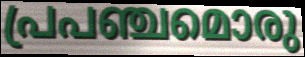
പ്രപഞ്ചമൊരു